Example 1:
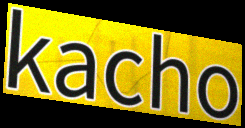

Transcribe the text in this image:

kacho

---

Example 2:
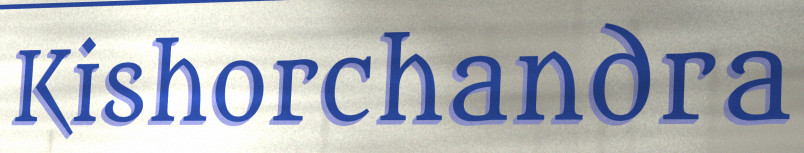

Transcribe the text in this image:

Kishorchandra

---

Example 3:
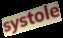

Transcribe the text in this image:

systole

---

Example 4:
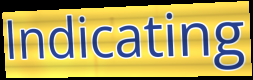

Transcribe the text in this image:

Indicating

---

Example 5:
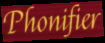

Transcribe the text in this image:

Phonifier